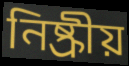
নিষ্ক্রীয়